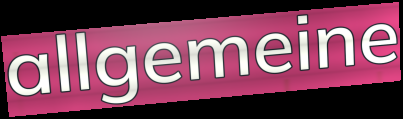
allgemeine